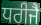
ਧਰੀਜੈ